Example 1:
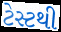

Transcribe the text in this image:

ટેસ્ટથી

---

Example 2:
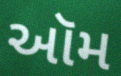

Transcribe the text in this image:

ઑમ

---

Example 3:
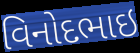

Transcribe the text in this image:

વિનોદભાઇ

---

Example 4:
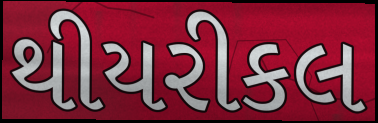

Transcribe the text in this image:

થીયરીકલ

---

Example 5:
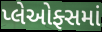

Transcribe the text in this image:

પ્લેઓફ્સમાં